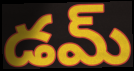
డమ్